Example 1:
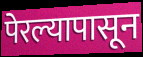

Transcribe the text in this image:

पेरल्यापासून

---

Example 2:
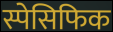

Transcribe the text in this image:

स्पेसिफिक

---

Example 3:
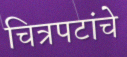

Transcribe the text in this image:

चित्रपटांचे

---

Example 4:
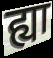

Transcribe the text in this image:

ह्या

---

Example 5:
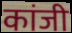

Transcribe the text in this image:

कांजी